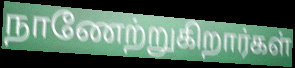
நாணேற்றுகிறார்கள்